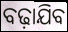
ବଢ଼ାଯିବ